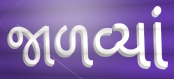
જાળવ્યાં